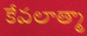
కేవలాత్మా